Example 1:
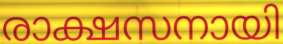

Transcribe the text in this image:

രാക്ഷസനായി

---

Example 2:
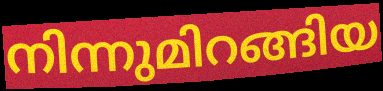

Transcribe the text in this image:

നിന്നുമിറങ്ങിയ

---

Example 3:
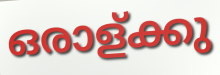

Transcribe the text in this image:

ഒരാള്ക്കു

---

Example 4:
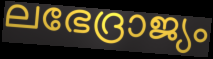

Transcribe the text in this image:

ലഭേദ്രാജ്യം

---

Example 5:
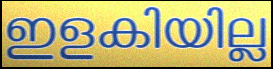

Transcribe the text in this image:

ഇളകിയില്ല